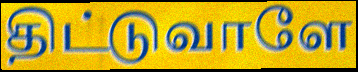
திட்டுவாளே